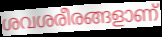
ശവശരീരങ്ങളാണ്